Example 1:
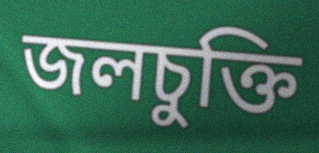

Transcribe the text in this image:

জলচুক্তি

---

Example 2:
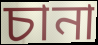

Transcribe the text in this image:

চানা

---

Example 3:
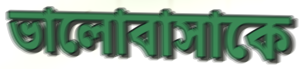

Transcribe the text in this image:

ভালোবাসাকে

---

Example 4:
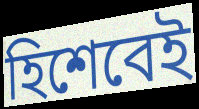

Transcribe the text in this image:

হিশেবেই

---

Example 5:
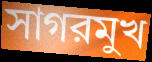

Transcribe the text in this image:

সাগরমুখ